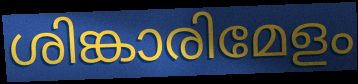
ശിങ്കാരിമേളം